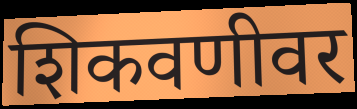
शिकवणीवर